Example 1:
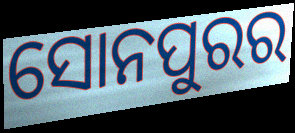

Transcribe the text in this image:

ସୋନପୁରର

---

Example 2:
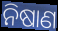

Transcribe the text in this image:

ନିଷାଣ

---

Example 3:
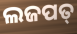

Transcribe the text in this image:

ଲଜପତ୍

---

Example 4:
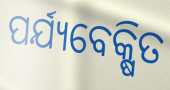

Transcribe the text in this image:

ପର୍ଯ୍ୟବେକ୍ଷିତ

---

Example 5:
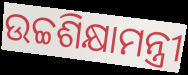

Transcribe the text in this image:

ଉଚ୍ଚଶିକ୍ଷାମନ୍ତ୍ରୀ